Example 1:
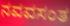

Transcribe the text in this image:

ನವವಸಂತ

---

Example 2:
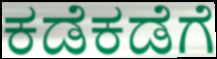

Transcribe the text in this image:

ಕಡೆಕಡೆಗೆ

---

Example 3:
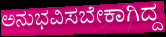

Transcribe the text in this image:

ಅನುಭವಿಸಬೇಕಾಗಿದ್ದ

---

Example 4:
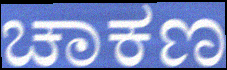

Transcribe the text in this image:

ಚಾಕಣ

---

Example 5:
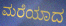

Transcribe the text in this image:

ಮರೆಯಾದ